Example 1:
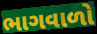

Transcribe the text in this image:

ભાગવાળો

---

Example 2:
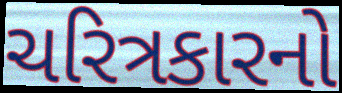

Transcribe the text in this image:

ચરિત્રકારનો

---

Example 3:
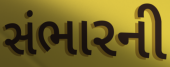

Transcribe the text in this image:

સંભારની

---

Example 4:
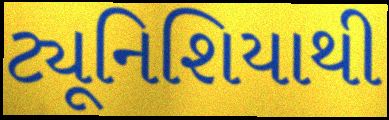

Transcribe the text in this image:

ટ્યૂનિશિયાથી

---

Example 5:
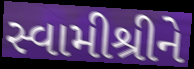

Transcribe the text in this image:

સ્વામીશ્રીને